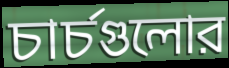
চার্চগুলোর